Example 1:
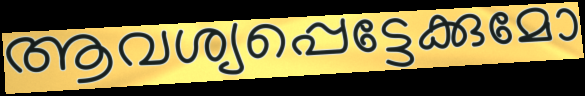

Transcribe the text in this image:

ആവശ്യപ്പെട്ടേക്കുമോ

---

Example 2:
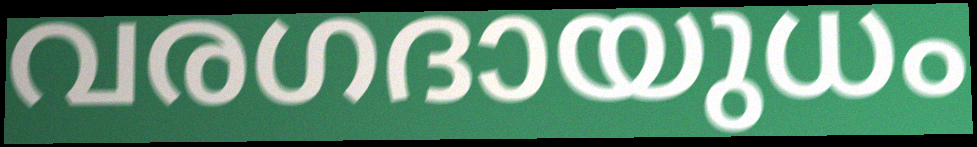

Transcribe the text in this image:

വരഗദായുധം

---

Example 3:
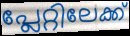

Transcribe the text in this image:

പ്ലേറ്റിലേക്ക്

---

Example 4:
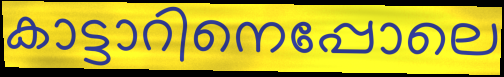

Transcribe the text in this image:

കാട്ടാറിനെപ്പോലെ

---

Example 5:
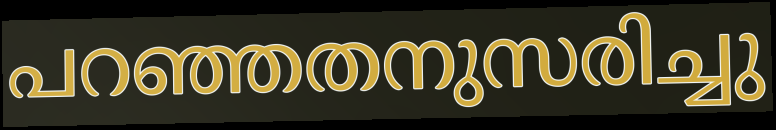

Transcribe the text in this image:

പറഞ്ഞതനുസരിച്ചു